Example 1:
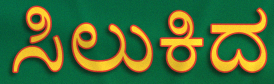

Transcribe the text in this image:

ಸಿಲುಕಿದ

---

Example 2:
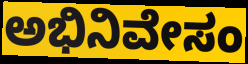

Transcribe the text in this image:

ಅಭಿನಿವೇಸಂ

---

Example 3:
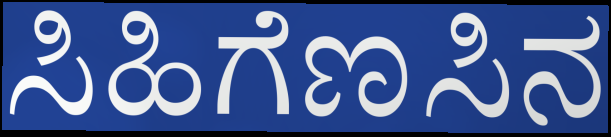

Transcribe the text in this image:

ಸಿಹಿಗೆಣಸಿನ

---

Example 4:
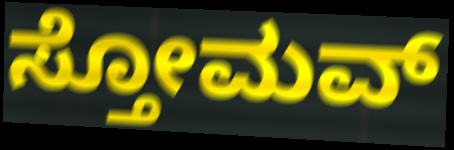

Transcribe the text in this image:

ಸ್ತೋಮವ್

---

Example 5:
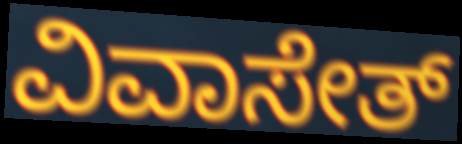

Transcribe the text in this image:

ವಿವಾಸೇತ್